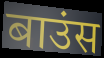
बाउंस